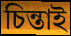
চিন্তাই